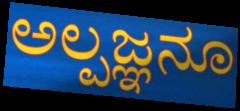
ಅಲ್ಪಜ್ಞನೂ